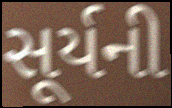
સૂર્યની